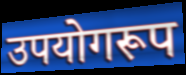
उपयोगरूप